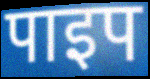
पाइप